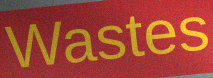
Wastes